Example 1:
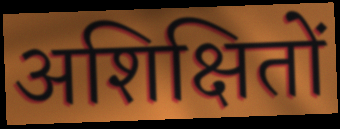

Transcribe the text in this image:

अशिक्षितों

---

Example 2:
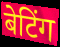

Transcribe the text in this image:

बेटिंग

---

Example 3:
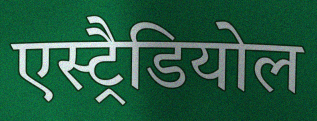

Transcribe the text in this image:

एस्ट्रैडियोल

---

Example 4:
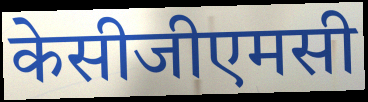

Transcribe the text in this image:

केसीजीएमसी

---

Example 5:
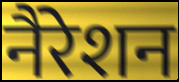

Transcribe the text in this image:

नैरेशन